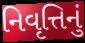
નિવૃત્તિનું